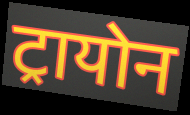
ट्रायोन